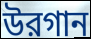
উরগান